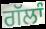
ਗੱਲਾੰ